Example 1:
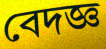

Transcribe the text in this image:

বেদজ্ঞ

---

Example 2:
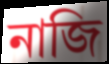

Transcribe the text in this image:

নাজি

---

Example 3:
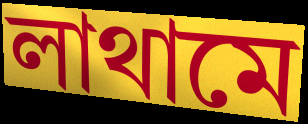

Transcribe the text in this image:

লাথামে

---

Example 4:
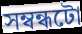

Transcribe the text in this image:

সম্বন্ধটো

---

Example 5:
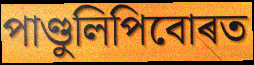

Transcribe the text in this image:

পাণ্ডুলিপিবোৰত